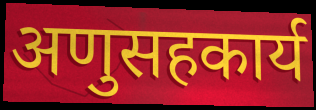
अणुसहकार्य